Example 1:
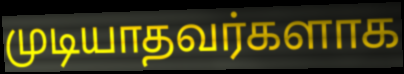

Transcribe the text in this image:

முடியாதவர்களாக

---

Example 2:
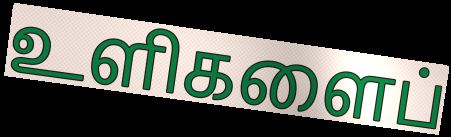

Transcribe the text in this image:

உளிகளைப்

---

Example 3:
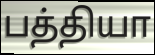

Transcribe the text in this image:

பத்தியா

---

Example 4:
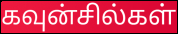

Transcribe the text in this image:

கவுன்சில்கள்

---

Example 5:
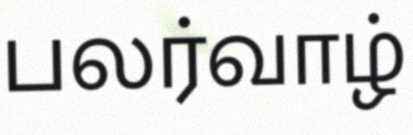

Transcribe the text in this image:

பலர்வாழ்